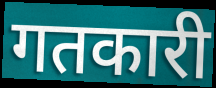
गतकारी